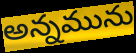
అన్నమును